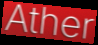
Ather